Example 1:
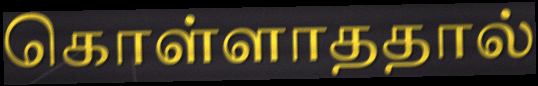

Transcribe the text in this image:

கொள்ளாததால்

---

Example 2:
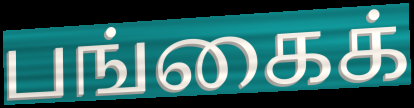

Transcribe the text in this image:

பங்கைக்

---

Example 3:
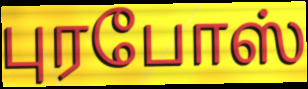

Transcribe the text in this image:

புரபோஸ்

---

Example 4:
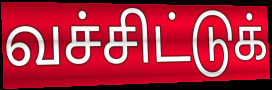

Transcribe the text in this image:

வச்சிட்டுக்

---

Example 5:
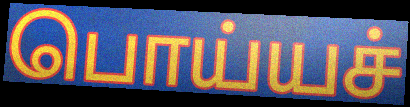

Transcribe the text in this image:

பொய்யச்